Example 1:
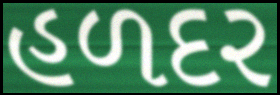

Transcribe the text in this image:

હળદર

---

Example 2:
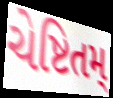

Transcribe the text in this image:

ચેષ્ટિતમ્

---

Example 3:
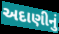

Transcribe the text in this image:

અદાણીનું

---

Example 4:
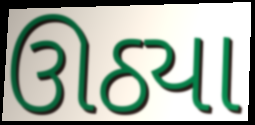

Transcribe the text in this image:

ઊઠ્યા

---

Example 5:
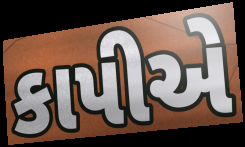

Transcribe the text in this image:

કાપીએ